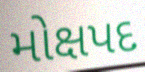
મોક્ષપદ